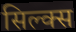
सिल्क्स